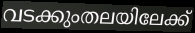
വടക്കുംതലയിലേക്ക്